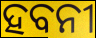
ହବନୀ